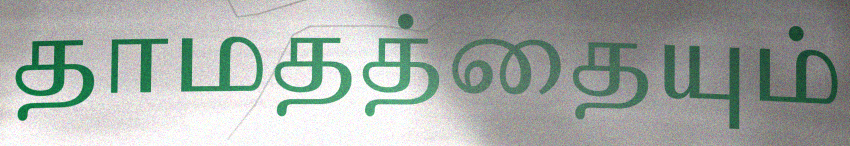
தாமதத்தையும்